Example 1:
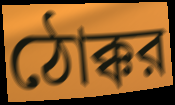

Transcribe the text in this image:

ঠোক্কর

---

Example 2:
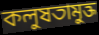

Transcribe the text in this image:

কলুষতামুক্ত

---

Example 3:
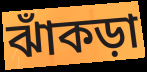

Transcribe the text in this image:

ঝাঁকড়া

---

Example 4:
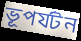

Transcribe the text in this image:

ভূপর্যটন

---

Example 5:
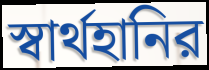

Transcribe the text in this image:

স্বার্থহানির